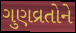
ગુણવ્રતોને